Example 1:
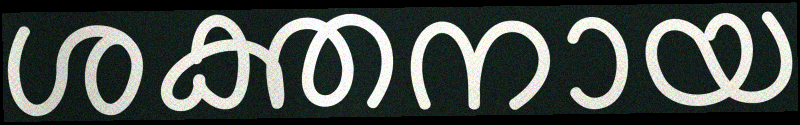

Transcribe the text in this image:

ശക്തനായ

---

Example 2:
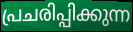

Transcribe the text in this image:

പ്രചരിപ്പിക്കുന്ന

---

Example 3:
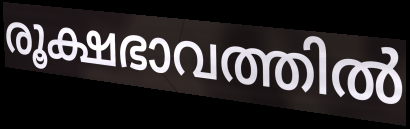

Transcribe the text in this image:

രൂക്ഷഭാവത്തിൽ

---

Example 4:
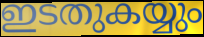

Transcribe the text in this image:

ഇടതുകയ്യും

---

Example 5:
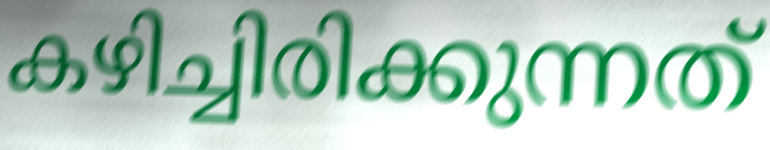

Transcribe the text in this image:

കഴിച്ചിരിക്കുന്നത്